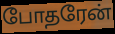
போதரேன்